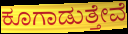
ಕೂಗಾಡುತ್ತೇವೆ